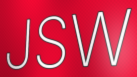
JSW